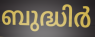
ബുദ്ധിർ